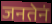
जनतेनं